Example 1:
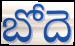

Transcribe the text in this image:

బోదె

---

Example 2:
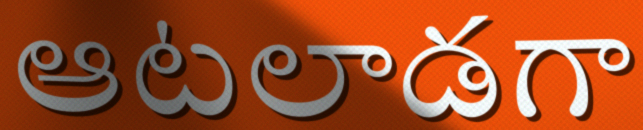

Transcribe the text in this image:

ఆటలాడగా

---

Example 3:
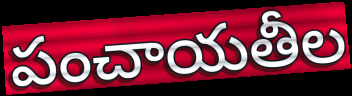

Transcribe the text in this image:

పంచాయతీల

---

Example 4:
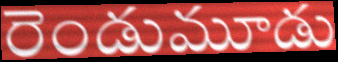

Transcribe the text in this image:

రెండుమూడు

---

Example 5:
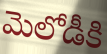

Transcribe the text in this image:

మెలోడీకి